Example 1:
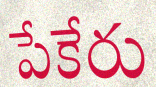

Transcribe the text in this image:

పేకేరు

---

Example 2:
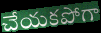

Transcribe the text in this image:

చేయకపోగా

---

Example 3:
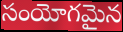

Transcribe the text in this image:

సంయోగమైన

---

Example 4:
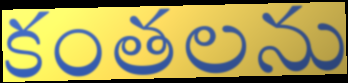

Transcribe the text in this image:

కంతలను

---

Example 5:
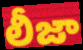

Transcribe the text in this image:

లీజా